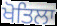
ਖੋਤਿਲਾ